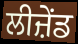
ਲੀਜ਼ੇਂਡ